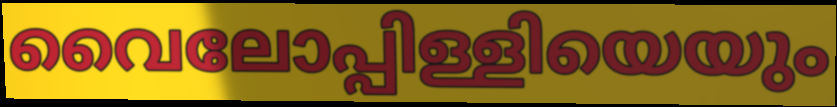
വൈലോപ്പിള്ളിയെയും